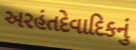
અરહંતદેવાદિકનું